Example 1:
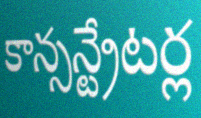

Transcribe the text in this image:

కాన్సన్ట్రేటర్ల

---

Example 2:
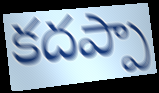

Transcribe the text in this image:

కదప్పా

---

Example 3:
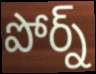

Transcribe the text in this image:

పోర్న్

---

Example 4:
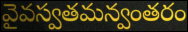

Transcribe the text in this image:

వైవస్వతమన్వంతరం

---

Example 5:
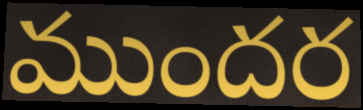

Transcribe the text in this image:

ముందర